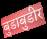
बुडाबुडीर